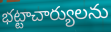
భట్టాచార్యులను